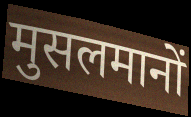
मुसलमानों